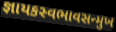
જ્ઞાયકસ્વભાવસન્મુખ